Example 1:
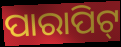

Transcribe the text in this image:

ପାରାପିଟ୍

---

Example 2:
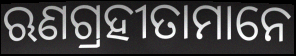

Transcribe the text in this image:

ଋଣଗ୍ରହୀତାମାନେ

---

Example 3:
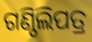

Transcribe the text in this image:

ଗଣ୍ଠିଲିପତ୍ର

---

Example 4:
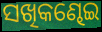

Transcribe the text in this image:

ସଖିକଣ୍ଢେଇ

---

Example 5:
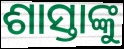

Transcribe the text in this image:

ଶାସ୍ତାଙ୍କୁ